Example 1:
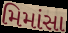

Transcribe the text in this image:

મિમાંસા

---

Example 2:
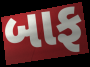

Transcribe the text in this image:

બાફ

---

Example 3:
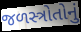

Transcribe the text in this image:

જળસ્ત્રોતોનું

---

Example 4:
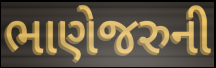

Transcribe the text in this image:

ભાણેજરુની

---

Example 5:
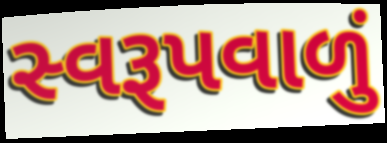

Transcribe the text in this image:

સ્વરૂપવાળું